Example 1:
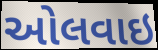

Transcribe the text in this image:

ઓલવાઇ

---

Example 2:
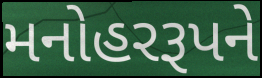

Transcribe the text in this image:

મનોહરરૂપને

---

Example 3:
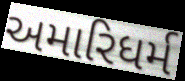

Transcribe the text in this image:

અમારિધર્મ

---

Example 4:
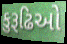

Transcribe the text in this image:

કુરૂઢિઓ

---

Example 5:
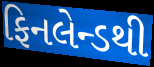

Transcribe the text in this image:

ફિનલેન્ડથી